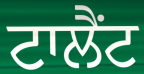
ਟਾਲੈਂਟ